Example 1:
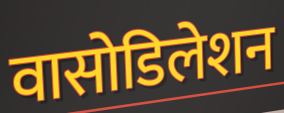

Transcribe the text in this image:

वासोडिलेशन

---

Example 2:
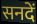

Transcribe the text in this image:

सनदें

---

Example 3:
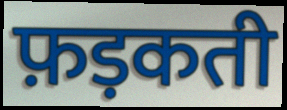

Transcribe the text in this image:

फ़ड़कती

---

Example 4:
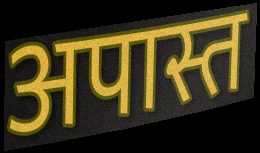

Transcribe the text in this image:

अपास्‍त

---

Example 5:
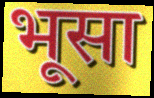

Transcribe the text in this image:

भूसा